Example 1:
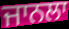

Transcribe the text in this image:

ਜਾਨਲਾ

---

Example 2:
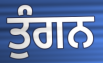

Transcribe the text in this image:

ਤੁੰਗਨ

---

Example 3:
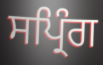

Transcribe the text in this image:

ਸਪ੍ਰਿੰਗ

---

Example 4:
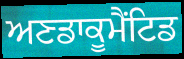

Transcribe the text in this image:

ਅਣਡਾਕੂਮੈਂਟਿਡ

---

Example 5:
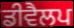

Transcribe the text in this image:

ਡੀਵੈਲਪ